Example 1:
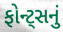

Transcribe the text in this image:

ફોન્ટ્સનું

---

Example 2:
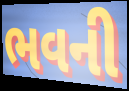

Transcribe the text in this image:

ભવની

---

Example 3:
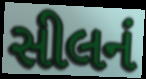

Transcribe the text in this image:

સીલનં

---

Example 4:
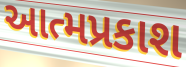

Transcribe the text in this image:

આત્મપ્રકાશ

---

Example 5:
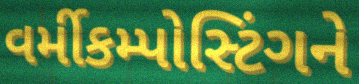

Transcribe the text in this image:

વર્મીકમ્પોસ્ટિંગને